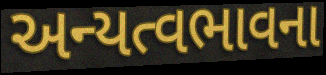
અન્યત્વભાવના